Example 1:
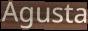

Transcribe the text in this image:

Agusta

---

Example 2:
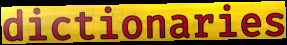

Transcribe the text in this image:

dictionaries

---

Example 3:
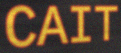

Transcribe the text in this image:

CAIT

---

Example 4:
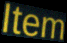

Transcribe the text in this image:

Item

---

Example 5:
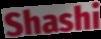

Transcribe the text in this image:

Shashi